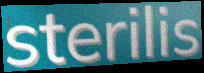
sterilis